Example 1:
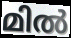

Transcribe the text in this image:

മിൽ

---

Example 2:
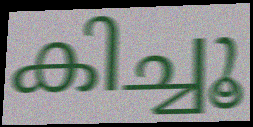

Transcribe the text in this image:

കിച്ചൂ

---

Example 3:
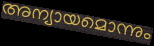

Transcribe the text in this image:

അന്യായമൊന്നും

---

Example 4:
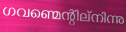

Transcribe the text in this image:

ഗവണ്മെന്റില്നിന്നു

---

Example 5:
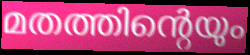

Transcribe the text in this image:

മതത്തിന്റെയും